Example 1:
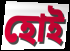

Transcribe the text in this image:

হোই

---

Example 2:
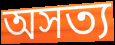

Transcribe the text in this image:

অসত্য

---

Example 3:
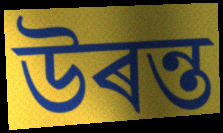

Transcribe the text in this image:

উৰন্ত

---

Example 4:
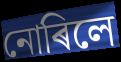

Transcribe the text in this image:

নোৰিলে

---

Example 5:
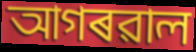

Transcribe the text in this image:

আগৰৱাল